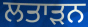
ਲਤਾੜਨ